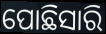
ପୋଛିସାରି